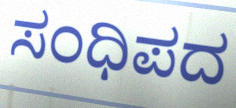
ಸಂಧಿಪದ